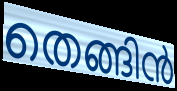
തെങ്ങിൻ